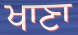
ਖਾਣਾ